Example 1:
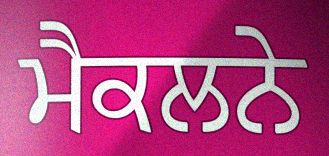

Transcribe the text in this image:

ਮੈਕਲਨੇ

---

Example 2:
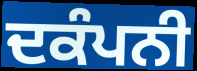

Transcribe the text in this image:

ਦਕੰਪਨੀ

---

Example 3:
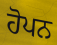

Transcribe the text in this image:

ਹੋਪਨ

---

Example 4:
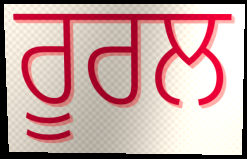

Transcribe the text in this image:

ਰੂਰਲ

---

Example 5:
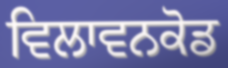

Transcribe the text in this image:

ਵਿਲਾਵਨਕੋਡ